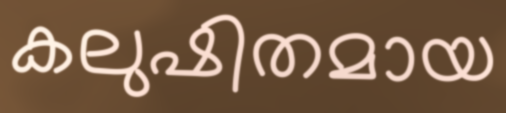
കലുഷിതമായ